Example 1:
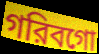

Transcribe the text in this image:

গরিবগো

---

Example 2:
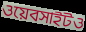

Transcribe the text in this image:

ওয়েবসাইটও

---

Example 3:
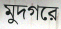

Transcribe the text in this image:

মুদগরে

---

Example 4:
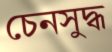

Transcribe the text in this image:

চেনসুদ্ধ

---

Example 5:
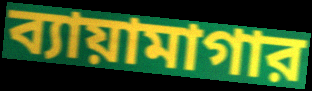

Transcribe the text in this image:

ব্যায়ামাগার